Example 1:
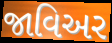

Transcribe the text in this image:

જાવિઅર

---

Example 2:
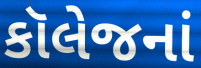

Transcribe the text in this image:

કૉલેજનાં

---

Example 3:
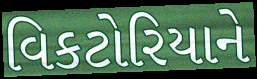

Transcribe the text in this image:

વિકટોરિયાને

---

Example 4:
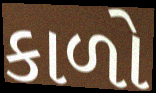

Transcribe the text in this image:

કાળો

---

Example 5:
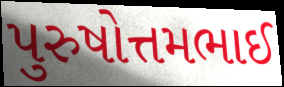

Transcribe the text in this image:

પુરુષોત્તમભાઈ